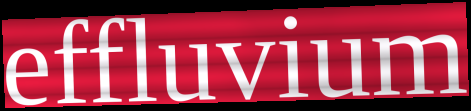
effluvium